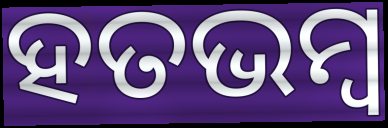
ହତଭମ୍ୱ